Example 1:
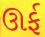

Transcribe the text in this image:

ઊર્ફ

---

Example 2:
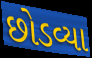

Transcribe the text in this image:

છોડવ્યા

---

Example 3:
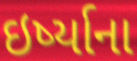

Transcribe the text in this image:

ઇર્ષ્યાના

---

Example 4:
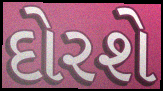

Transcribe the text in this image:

દોરશે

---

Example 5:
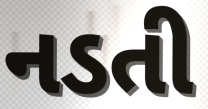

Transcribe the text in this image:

નડતી